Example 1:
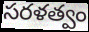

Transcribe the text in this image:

సరళత్వం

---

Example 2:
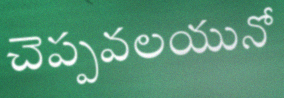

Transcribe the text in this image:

చెప్పవలయునో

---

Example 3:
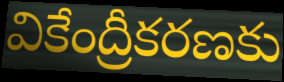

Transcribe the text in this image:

వికేంద్రీకరణకు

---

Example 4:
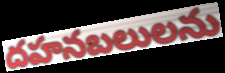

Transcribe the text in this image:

దహనబలులను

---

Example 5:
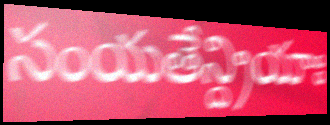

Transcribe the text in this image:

సంయతేన్ద్రియాః